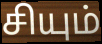
சியும்